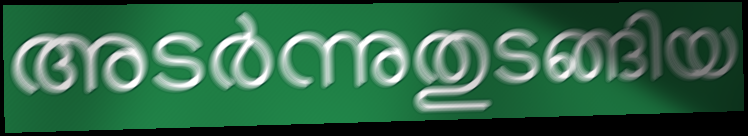
അടർന്നുതുടങ്ങിയ